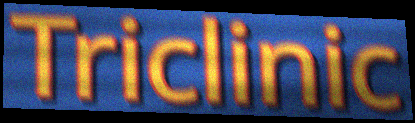
Triclinic